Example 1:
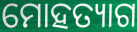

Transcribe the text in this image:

ମୋହତ୍ୟାଗ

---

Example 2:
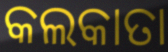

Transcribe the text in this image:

କଲକାତା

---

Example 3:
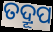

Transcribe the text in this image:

ତଦ୍ରୂପ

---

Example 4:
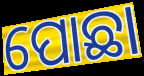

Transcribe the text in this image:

ପୋଛା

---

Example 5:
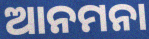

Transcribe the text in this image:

ଆନମନା